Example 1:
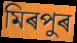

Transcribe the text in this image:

মিৰপুৰ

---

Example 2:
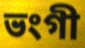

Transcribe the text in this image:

ভংগী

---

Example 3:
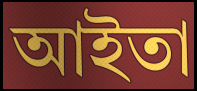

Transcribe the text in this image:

আইতা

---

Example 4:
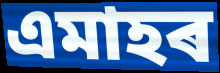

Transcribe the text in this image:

এমাহৰ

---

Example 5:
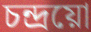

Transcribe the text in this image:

চন্দ্ৰয়ো